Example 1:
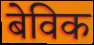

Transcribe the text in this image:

बेविक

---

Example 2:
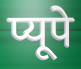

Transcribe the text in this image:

प्यूपे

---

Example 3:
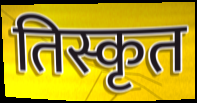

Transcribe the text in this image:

तिस्कृत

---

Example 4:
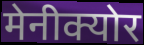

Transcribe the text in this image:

मेनीक्योर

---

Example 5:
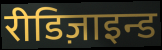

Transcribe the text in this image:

रीडिज़ाइन्ड